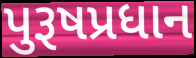
પુરૂષપ્રધાન